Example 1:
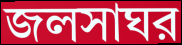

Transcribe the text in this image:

জলসাঘর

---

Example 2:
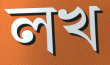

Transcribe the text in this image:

লখ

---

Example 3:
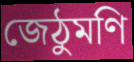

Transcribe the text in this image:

জেঠুমণি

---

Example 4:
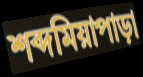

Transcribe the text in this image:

শব্দমিয়াপাড়া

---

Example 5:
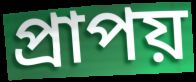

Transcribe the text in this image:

প্রাপয়